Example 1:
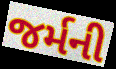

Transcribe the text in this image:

જર્મની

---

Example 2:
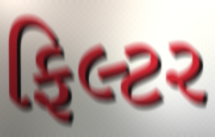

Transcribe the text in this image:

ફિલ્ટર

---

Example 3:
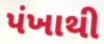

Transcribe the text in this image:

પંખાથી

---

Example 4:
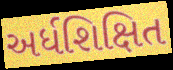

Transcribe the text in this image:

અર્ધશિક્ષિત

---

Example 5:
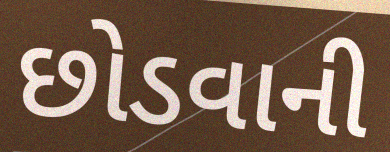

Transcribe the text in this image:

છોડવાની